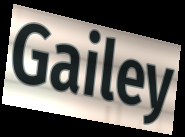
Gailey